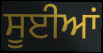
ਸੂਈਆਂ